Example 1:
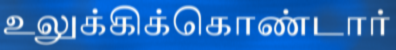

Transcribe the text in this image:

உலுக்கிக்கொண்டார்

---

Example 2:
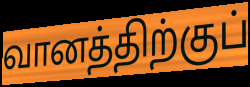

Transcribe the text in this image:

வானத்திற்குப்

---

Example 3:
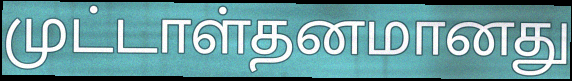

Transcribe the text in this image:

முட்டாள்தனமானது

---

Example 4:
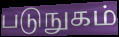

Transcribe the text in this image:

படுநுகம்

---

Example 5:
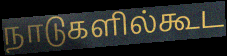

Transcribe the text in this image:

நாடுகளில்கூட